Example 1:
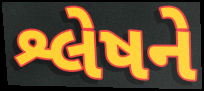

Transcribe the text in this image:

શ્લેષને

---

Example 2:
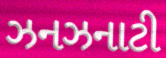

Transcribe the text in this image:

ઝનઝનાટી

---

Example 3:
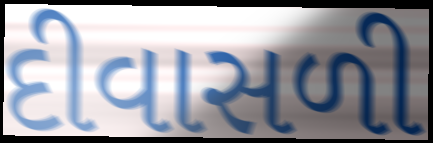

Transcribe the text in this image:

દીવાસળી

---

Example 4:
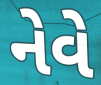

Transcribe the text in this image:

નેવે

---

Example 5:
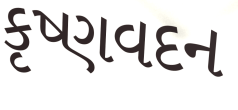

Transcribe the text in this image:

કૃષ્ણવદન